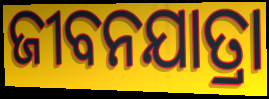
ଜୀବନଯାତ୍ରା